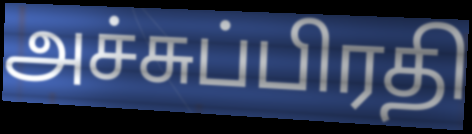
அச்சுப்பிரதி